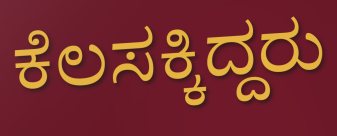
ಕೆಲಸಕ್ಕಿದ್ದರು